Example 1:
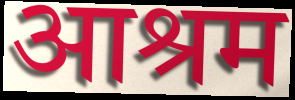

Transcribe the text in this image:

आश्रम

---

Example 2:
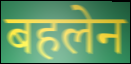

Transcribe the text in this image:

बहलेन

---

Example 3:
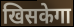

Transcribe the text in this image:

खिसकेगा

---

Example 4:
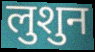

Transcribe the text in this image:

लुशुन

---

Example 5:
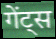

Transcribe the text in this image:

गेंट्स